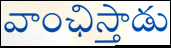
వాంఛిస్తాడు